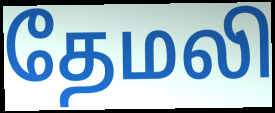
தேமலி